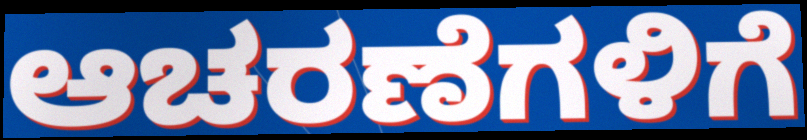
ಆಚರಣೆಗಳಿಗೆ